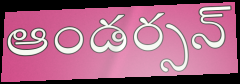
ఆండర్సన్